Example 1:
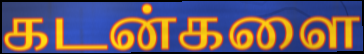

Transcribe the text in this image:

கடன்களை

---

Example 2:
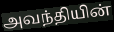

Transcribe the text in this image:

அவந்தியின்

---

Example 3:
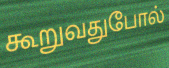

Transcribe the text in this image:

கூறுவதுபோல்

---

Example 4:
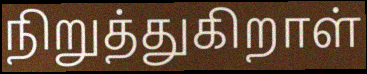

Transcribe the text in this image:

நிறுத்துகிறாள்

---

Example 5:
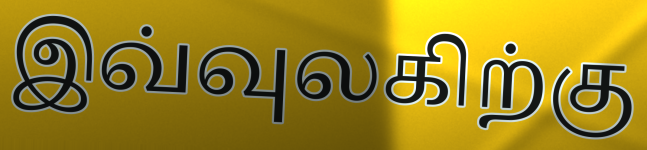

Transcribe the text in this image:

இவ்வுலகிற்கு